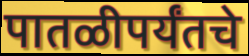
पातळीपर्यंतचे